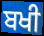
ਬਖੀ